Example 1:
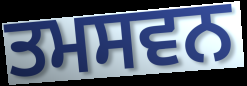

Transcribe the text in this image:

ਤਮਸਵਨ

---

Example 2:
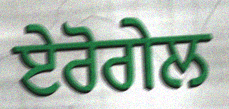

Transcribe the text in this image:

ਏਰੋਗੇਲ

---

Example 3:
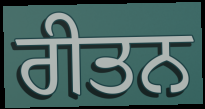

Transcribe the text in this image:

ਰੀਤਨ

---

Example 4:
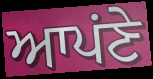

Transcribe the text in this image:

ਆਪਂਣੇ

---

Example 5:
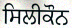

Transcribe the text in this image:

ਸਿਲੀਕੌਨ